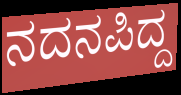
ನದನಪಿದ್ದ